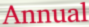
Annual